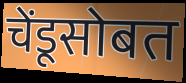
चेंडूसोबत